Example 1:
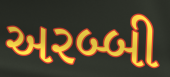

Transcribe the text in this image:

અરબ્બી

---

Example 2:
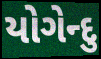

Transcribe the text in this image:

યોગેન્દુ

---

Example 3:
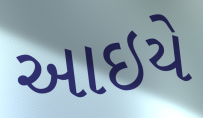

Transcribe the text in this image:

આઇયે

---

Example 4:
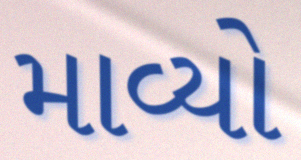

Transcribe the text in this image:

માવ્યો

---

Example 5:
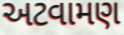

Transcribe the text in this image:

અટવામણ